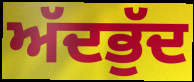
ਅੱਦਭੁੱਦ